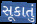
સૂકાતું